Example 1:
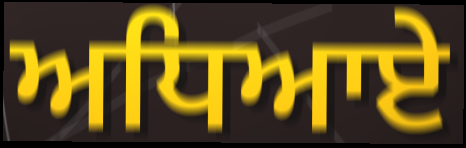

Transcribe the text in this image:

ਅਧਿਆਏ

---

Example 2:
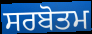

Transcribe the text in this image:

ਸਰਬੋਤਮ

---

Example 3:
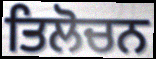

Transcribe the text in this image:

ਤਿਲੋਚਨ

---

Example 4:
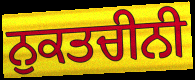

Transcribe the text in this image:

ਨੁਕਤਚੀਨੀ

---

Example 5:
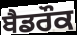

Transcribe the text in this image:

ਬੈਡਰੌਕ